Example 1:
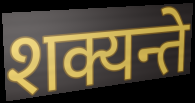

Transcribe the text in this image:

शक्यन्ते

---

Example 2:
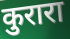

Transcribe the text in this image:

कुरारा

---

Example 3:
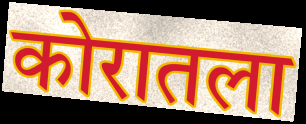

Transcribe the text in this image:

कोरातला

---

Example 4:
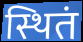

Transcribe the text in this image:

स्थितं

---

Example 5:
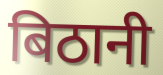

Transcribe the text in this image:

बिठानी